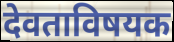
देवताविषयक